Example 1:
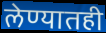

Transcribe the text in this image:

लेण्यातही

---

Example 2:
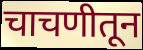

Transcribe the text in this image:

चाचणीतून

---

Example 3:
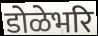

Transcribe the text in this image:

डोळेभरि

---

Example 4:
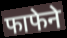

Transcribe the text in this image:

फाफेने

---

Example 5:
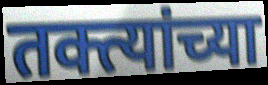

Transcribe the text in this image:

तक्त्यांच्या